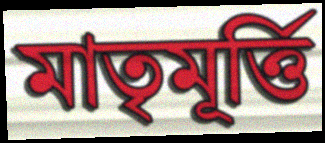
মাতৃমূর্ত্তি